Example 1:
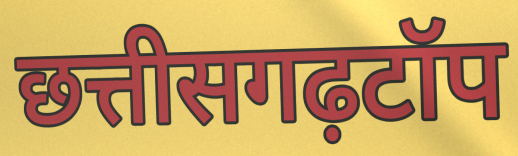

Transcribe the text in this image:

छत्तीसगढ़टॉप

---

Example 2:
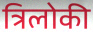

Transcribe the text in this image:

त्रिलोकी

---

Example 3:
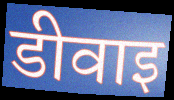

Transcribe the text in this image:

डीवाइ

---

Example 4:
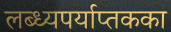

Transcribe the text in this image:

लब्ध्यपर्याप्तकका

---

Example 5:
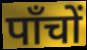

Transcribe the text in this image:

पाँचों